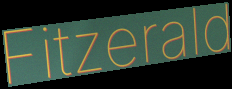
Fitzerald